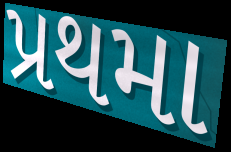
પ્રથમા